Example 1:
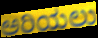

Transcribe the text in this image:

ಅರಿಯಲು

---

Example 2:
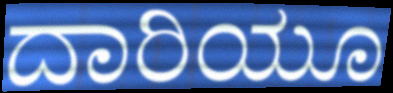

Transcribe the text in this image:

ದಾರಿಯೂ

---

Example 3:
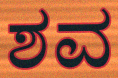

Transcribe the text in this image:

ಶವ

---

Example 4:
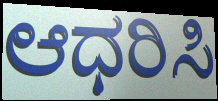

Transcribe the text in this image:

ಆಧರಿಸಿ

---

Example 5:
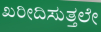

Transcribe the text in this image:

ಖರೀದಿಸುತ್ತಲೇ